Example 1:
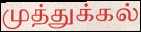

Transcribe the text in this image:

முத்துக்கல்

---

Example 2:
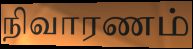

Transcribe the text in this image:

நிவாரணம்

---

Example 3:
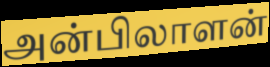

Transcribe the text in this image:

அன்பிலாளன்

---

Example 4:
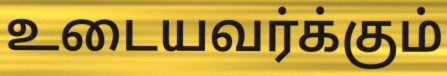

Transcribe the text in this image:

உடையவர்க்கும்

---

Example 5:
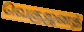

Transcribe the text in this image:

வெகுஜனத்